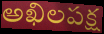
అఖిలపక్ష